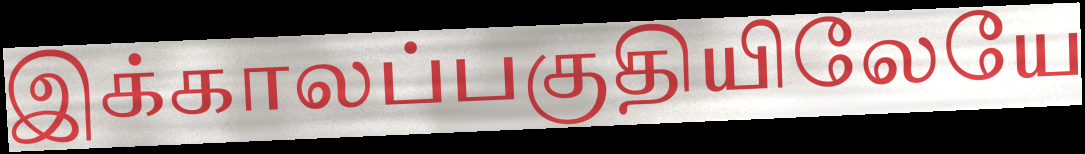
இக்காலப்பகுதியிலேயே